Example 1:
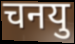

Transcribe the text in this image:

चनयु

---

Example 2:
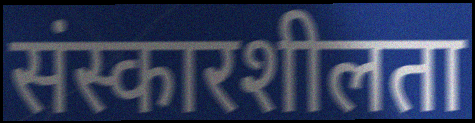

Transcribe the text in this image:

संस्कारशीलता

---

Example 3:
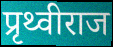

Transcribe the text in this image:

प्रृथ्वीराज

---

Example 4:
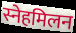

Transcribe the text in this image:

स्नेहमिलन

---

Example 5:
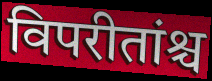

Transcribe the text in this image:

विपरीतांश्च